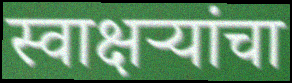
स्वाक्षऱ्यांचा